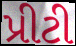
પ્રીટી